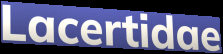
Lacertidae